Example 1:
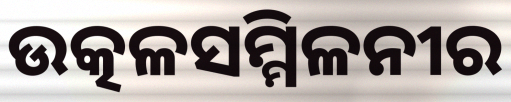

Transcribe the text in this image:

ଉତ୍କଳସମ୍ମିଳନୀର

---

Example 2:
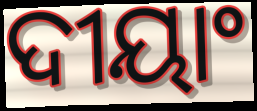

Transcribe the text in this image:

ଦୀୟାଂ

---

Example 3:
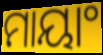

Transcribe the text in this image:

ମାୟାଂ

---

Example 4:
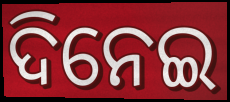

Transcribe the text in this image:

ଦିନେଇ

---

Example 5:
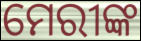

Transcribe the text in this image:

ମେରୀଙ୍କ